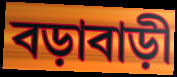
বড়াবাড়ী